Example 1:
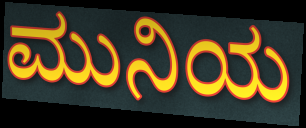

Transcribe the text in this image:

ಮುನಿಯ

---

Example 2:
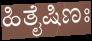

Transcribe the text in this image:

ಹಿತೈಷಿಣಃ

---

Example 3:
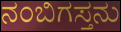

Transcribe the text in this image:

ನಂಬಿಗಸ್ತನು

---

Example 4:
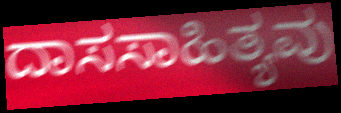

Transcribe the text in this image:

ದಾಸಸಾಹಿತ್ಯವು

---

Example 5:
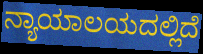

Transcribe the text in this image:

ನ್ಯಾಯಾಲಯದಲ್ಲಿದೆ